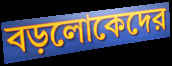
বড়লোকেদের